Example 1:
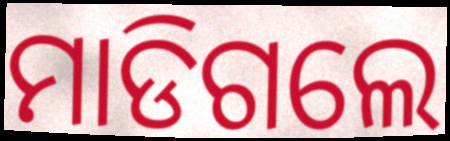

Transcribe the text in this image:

ମାଡିଗଲେ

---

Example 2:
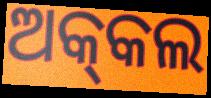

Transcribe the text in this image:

ଅକ୍‍କଲ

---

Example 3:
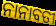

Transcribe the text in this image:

ନାନାବତୀ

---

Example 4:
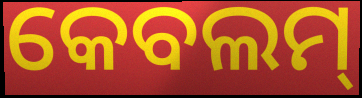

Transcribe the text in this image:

କେବଲମ୍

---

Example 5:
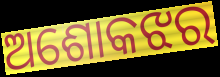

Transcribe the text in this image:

ଅଶୋକଝର